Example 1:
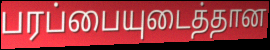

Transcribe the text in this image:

பரப்பையுடைத்தான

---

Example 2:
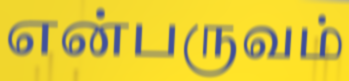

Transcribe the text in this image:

என்பருவம்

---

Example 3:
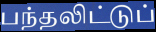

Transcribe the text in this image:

பந்தலிட்டுப்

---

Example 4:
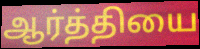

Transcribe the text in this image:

ஆர்த்தியை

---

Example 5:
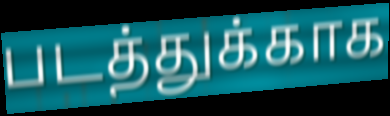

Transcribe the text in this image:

படத்துக்காக